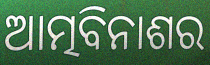
ଆତ୍ମବିନାଶର